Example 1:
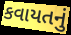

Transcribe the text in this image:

કવાયતનું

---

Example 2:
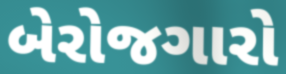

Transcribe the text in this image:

બેરોજગારો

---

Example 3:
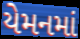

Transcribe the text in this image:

યેમનમાં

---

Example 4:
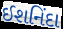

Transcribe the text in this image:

ઈશનિંદા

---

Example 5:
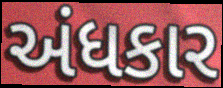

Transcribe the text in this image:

અંધકાર